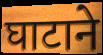
घाटाने